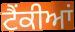
ਟੈਂਕੀਆਂ